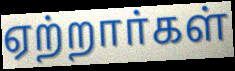
ஏற்றார்கள்